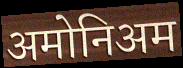
अमोनिअम